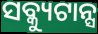
ସବ୍କ୍ୟୁଟାନ୍ସ